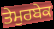
ਤੇਮੁਰਬੇਕ